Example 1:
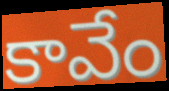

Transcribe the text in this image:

కావేం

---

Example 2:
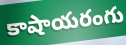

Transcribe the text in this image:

కాషాయరంగు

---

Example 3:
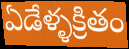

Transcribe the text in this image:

ఏడేళ్ళక్రితం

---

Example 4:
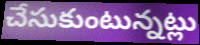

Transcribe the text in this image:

చేసుకుంటున్నట్లు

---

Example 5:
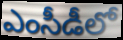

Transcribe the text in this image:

ఎంసీడీలో